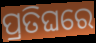
ପ୍ରତିଘରେ